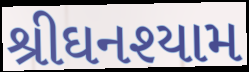
શ્રીઘનશ્યામ